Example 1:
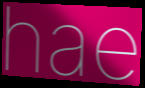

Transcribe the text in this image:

hae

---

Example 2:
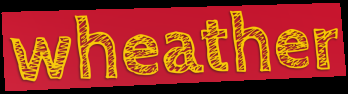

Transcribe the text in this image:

wheather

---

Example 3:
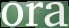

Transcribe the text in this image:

ora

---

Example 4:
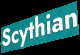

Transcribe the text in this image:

Scythian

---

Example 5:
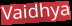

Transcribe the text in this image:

Vaidhya